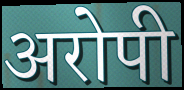
अरोपी